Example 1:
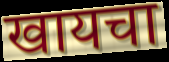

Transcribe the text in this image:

खायचा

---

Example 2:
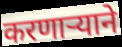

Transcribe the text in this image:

करणाऱ्याने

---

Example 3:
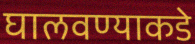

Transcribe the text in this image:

घालवण्याकडे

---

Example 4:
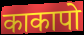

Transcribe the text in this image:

काकापो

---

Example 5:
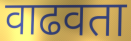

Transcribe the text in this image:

वाढवता